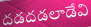
దడదడలాడేవి